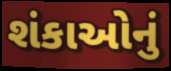
શંકાઓનું